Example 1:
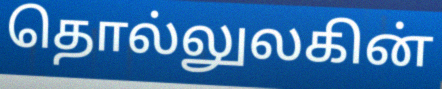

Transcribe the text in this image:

தொல்லுலகின்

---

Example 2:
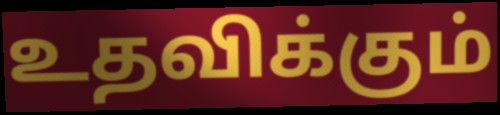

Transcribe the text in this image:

உதவிக்கும்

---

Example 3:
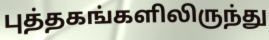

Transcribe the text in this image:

புத்தகங்களிலிருந்து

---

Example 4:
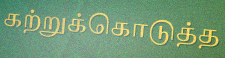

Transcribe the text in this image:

கற்றுக்கொடுத்த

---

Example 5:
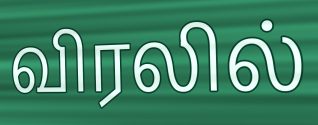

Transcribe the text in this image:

விரலில்